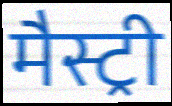
मैस्ट्री